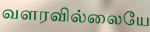
வளரவில்லையே